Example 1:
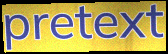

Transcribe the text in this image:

pretext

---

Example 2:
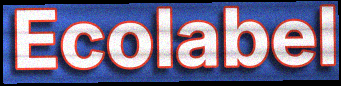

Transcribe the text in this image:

Ecolabel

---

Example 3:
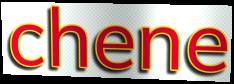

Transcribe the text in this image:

chene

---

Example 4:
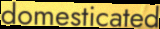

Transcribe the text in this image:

domesticated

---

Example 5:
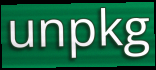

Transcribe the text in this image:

unpkg